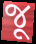
જૂ